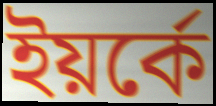
ইয়র্কে